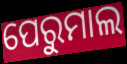
ପେରୁମାଲ